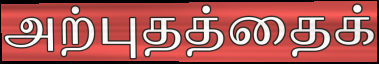
அற்புதத்தைக்